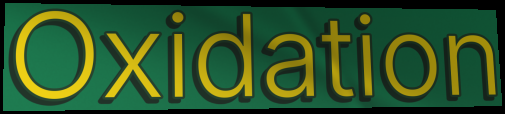
Oxidation